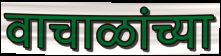
वाचाळांच्या